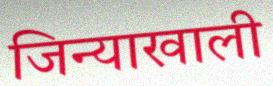
जिन्याखाली